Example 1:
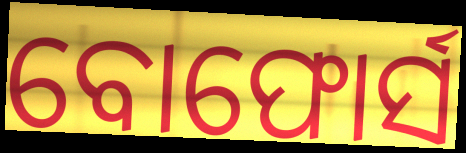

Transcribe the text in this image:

ବୋଫୋର୍ସ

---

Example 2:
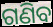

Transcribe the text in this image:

ଗଣିବ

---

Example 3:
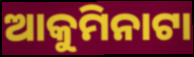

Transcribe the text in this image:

ଆକୁମିନାଟା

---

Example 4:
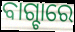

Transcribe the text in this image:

ବାଗ୍ଚାରେ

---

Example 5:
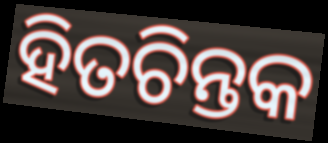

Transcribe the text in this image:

ହିତଚିନ୍ତକ